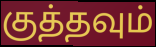
குத்தவும்